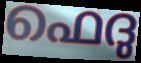
ഫെദു